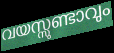
വയസ്സുണ്ടാവും